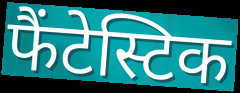
फैंटेस्टिक